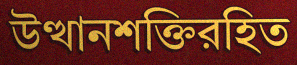
উত্থানশক্তিরহিত